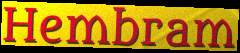
Hembram